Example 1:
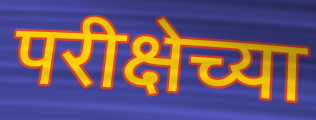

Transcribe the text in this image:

परीक्षेच्या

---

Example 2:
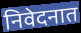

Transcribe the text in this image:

निवेदनात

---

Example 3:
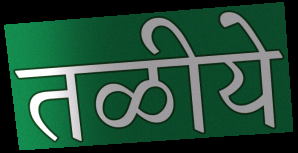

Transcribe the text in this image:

तळीये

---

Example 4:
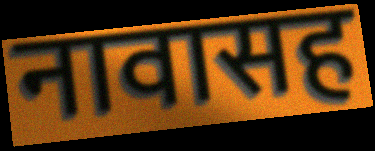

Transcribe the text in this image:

नावासह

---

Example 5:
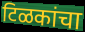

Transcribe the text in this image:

टिळकांचा